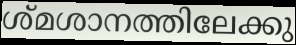
ശ്മശാനത്തിലേക്കു